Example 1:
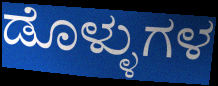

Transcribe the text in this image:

ಡೊಳ್ಳುಗಳ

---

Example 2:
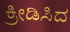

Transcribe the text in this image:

ಕ್ರೀಡಿಸಿದ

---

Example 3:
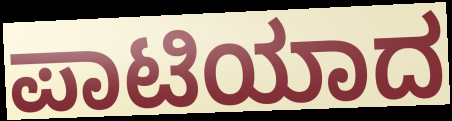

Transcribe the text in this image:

ಪಾಟಿಯಾದ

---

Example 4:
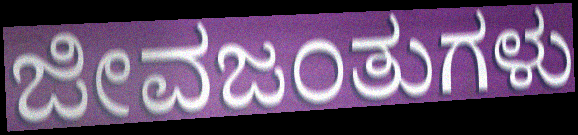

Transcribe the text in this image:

ಜೀವಜಂತುಗಳು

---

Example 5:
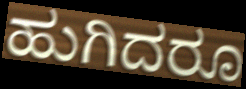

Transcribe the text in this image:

ಹುಗಿದರೂ